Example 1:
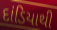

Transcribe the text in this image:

દાંડિયાથી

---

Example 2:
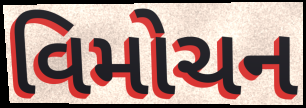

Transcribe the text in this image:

વિમોચન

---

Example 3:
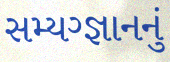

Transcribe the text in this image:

સમ્યગ્જ્ઞાનનું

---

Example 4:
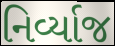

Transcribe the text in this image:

નિર્વ્યાજ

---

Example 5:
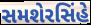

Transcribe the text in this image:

સમશેરસિંહે